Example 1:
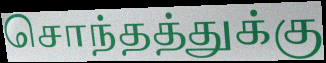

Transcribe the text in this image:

சொந்தத்துக்கு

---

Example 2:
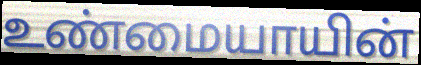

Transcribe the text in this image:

உண்மையாயின்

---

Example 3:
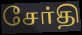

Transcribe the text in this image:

சேர்தி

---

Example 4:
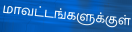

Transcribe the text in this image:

மாவட்டங்களுக்குள்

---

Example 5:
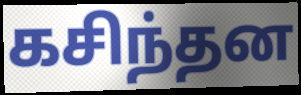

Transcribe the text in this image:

கசிந்தன